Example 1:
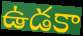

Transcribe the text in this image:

ఉడకా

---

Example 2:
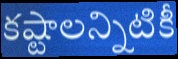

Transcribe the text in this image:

కష్టాలన్నిటికీ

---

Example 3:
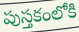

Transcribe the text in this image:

పుస్తకంలోకి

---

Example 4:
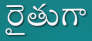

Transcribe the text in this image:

రైతుగా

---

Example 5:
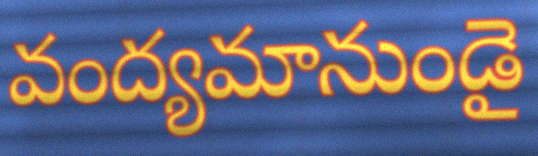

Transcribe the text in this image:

వంద్యమానుండై